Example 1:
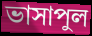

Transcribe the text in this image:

ভাসাপুল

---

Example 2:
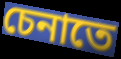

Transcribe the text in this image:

চেনাতে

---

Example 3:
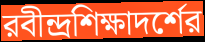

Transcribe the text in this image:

রবীন্দ্রশিক্ষাদর্শের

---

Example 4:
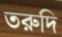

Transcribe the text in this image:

তরুদি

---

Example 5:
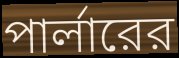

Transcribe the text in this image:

পার্লারের